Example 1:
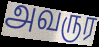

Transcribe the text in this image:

அவருர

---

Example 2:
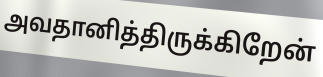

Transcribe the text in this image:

அவதானித்திருக்கிறேன்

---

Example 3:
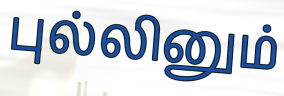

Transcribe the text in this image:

புல்லினும்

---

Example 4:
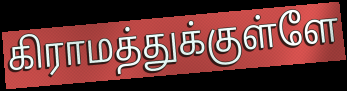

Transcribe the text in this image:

கிராமத்துக்குள்ளே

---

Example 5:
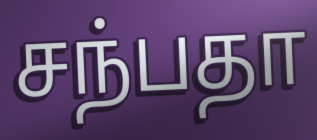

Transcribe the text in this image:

சந்பதா